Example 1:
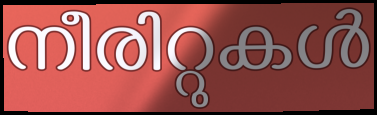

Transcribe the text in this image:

നീരിറ്റുകൾ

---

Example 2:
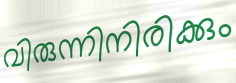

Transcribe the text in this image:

വിരുന്നിനിരിക്കും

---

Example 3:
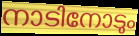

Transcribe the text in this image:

നാടിനോടും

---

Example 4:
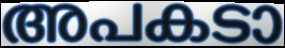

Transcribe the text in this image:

അപകടാ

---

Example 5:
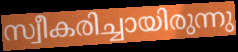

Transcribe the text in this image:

സ്വീകരിച്ചായിരുന്നു